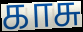
காசு